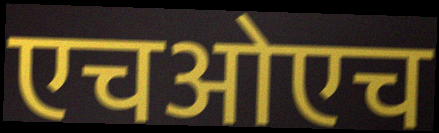
एचओएच